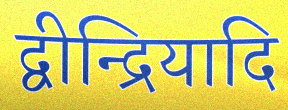
द्वीन्द्रियादि